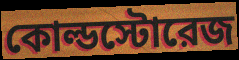
কোল্ডস্টোরেজ